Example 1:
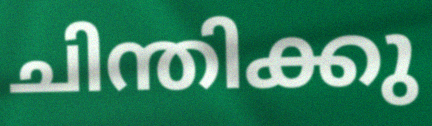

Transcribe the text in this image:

ചിന്തിക്കു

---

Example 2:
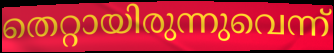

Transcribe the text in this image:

തെറ്റായിരുന്നുവെന്ന്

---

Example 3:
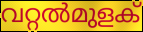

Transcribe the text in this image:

വറ്റൽമുളക്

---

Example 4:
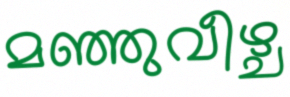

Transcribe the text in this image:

മഞ്ഞുവീഴ്ച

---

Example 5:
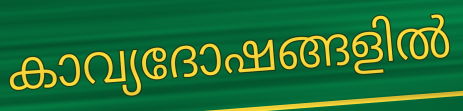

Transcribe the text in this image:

കാവ്യദോഷങ്ങളിൽ